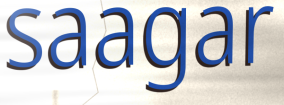
saagar